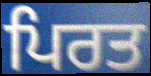
ਪਿਰਤ